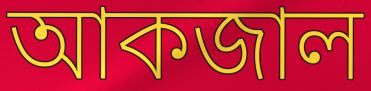
আকজাল